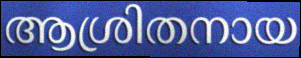
ആശ്രിതനായ